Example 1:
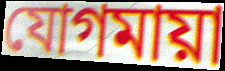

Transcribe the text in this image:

যোগমায়া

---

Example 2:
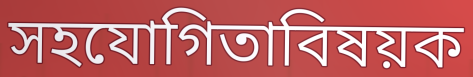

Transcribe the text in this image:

সহযোগিতাবিষয়ক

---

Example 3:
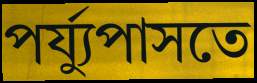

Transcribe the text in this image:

পর্য্যুপাসতে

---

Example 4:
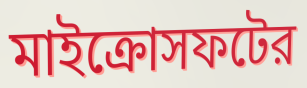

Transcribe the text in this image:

মাইক্রোসফটের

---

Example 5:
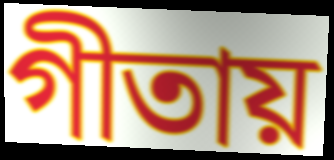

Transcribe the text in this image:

গীতায়